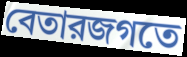
বেতারজগতে